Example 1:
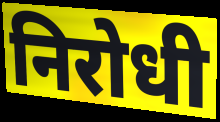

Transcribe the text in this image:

निरोधी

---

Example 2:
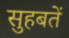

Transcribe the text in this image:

सुहबतें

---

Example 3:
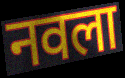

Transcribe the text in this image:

नवला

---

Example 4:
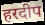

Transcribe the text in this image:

हरदीप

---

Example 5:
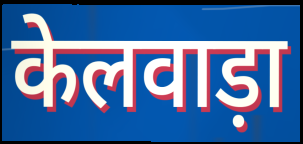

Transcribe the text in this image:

केलवाड़ा